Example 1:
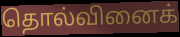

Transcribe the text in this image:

தொல்வினைக்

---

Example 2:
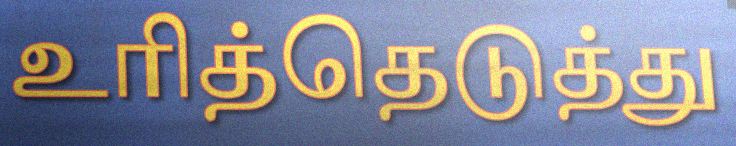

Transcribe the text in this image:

உரித்தெடுத்து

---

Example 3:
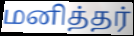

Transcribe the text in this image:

மனித்தர்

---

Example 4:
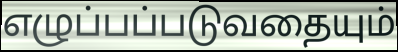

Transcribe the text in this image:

எழுப்பப்படுவதையும்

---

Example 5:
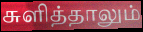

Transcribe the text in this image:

சுளித்தாலும்